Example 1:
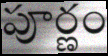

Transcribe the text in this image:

పూర్ణం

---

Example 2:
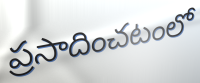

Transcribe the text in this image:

ప్రసాదించటంలో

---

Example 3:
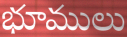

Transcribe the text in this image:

భూములు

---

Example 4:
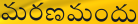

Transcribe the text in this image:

మరణమందు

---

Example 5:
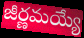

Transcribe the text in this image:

జీర్ణమయ్యే